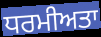
ਧਰਮੀਅਤਾ